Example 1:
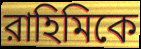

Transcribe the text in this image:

রাহিমিকে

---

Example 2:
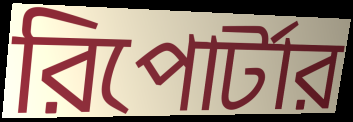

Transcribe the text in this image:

রিপোর্টার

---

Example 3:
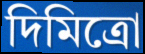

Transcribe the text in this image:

দিমিত্রো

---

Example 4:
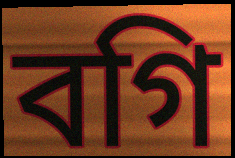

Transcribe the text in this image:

বগি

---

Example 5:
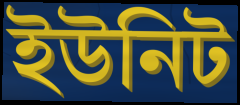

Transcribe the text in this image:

ইউনিট